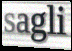
sagli